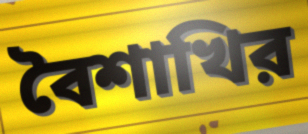
বৈশাখির